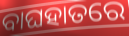
ବାଘହାତରେ